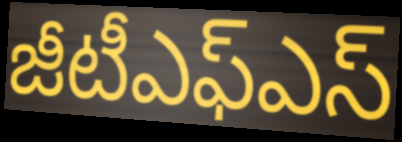
జీటీఎఫ్ఎస్